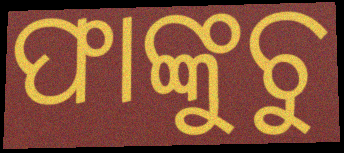
ଫାଙ୍କୁଚୁ